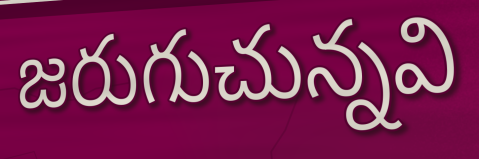
జరుగుచున్నవి